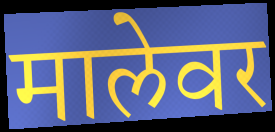
मालेवर